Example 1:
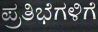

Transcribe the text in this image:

ಪ್ರತಿಭೆಗಳಿಗೆ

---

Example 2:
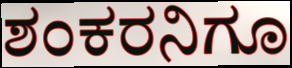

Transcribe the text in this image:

ಶಂಕರನಿಗೂ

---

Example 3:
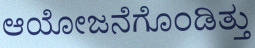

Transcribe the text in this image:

ಆಯೋಜನೆಗೊಂಡಿತ್ತು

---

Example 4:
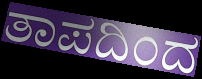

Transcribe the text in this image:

ತಾಪದಿಂದ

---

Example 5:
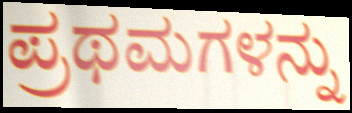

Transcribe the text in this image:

ಪ್ರಥಮಗಳನ್ನು